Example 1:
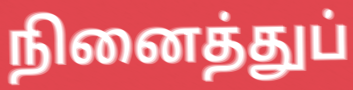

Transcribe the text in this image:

நினைத்துப்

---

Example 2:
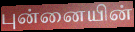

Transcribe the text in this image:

புன்னையின்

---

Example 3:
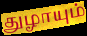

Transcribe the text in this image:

துழாயும்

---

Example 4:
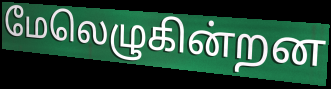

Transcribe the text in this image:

மேலெழுகின்றன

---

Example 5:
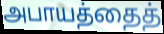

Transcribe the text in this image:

அபாயத்தைத்